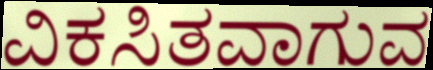
ವಿಕಸಿತವಾಗುವ